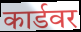
कार्डवर